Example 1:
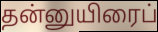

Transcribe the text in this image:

தன்னுயிரைப்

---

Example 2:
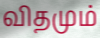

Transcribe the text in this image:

விதமும்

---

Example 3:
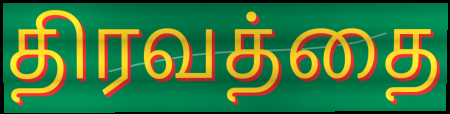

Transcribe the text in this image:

திரவத்தை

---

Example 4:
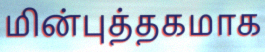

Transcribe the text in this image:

மின்புத்தகமாக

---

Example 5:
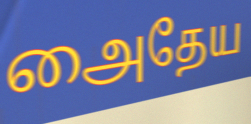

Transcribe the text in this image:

அைதேய